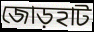
জোড়হাট